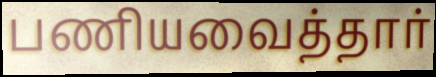
பணியவைத்தார்